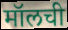
मॉलची